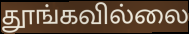
தூங்கவில்லை